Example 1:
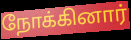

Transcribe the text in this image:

நோக்கினார்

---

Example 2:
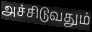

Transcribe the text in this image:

அச்சிடுவதும்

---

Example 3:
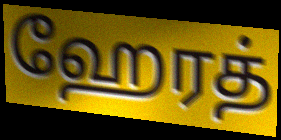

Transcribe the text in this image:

ஹேரத்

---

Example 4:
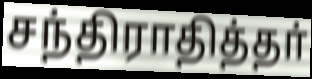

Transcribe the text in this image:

சந்திராதித்தர்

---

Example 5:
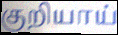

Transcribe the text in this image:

குறியாய்